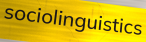
sociolinguistics